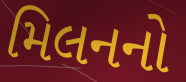
મિલનનો